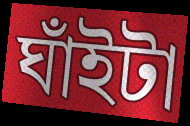
ঘাঁইটা